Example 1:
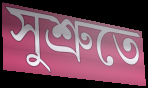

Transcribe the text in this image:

সুশ্ৰুতে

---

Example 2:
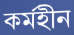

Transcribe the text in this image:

কৰ্মহীন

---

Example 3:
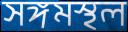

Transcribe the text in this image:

সঙ্গমস্থল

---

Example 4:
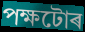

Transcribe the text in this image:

পক্ষটোৰ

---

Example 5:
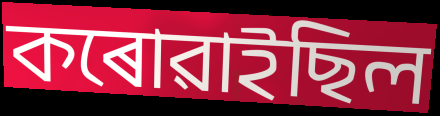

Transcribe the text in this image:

কৰোৱাইছিল